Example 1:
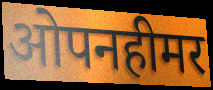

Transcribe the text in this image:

ओपनहीमर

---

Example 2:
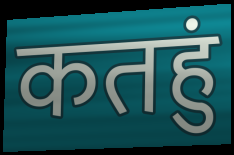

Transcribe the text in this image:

कतहुं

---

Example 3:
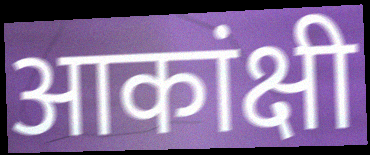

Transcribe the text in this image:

आकांक्षी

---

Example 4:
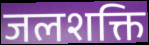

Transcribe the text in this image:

जलशक्ति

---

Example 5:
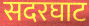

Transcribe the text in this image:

सदरघाट